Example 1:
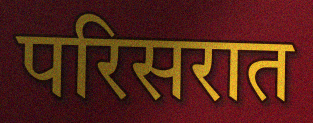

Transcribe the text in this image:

परिसरात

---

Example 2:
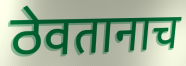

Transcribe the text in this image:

ठेवतानाच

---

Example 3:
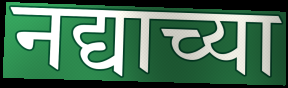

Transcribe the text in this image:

नद्याच्या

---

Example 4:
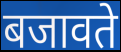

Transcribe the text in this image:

बजावते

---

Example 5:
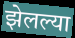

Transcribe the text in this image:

झेलल्या